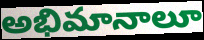
అభిమానాలూ